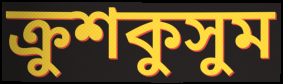
ক্রুশকুসুম